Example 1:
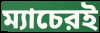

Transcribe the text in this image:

ম্যাচেরই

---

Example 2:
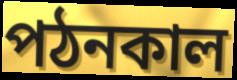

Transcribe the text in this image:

পঠনকাল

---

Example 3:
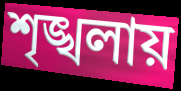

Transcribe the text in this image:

শৃঙ্খলায়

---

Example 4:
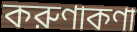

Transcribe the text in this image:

করুণাকণা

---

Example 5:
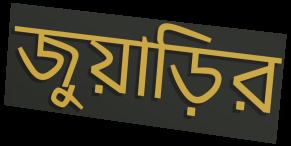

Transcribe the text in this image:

জুয়াড়ির